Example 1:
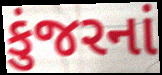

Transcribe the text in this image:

કુંજરનાં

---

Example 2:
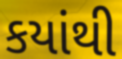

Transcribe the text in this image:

કયાંથી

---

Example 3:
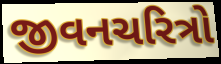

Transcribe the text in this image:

જીવનચરિત્રો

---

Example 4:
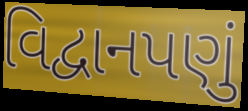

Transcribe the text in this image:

વિદ્વાનપણું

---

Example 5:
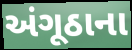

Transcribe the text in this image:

અંગૂઠાના